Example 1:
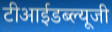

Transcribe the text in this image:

टीआईडब्ल्यूजी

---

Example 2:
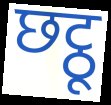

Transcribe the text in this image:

छट्ठू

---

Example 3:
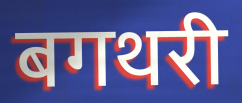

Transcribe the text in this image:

बगथरी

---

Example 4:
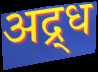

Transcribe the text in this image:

अद्र्ध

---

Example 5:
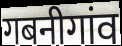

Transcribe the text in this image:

गबनीगांव